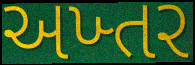
અખ્તર